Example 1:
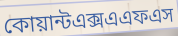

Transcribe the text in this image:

কোয়ান্টএক্সএএফএস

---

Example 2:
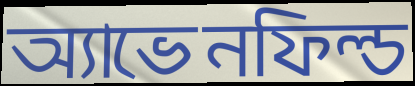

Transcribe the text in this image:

অ্যাভেনফিল্ড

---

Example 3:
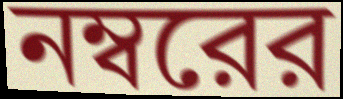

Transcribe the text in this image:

নম্বরের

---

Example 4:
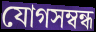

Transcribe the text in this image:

যোগসম্বন্ধ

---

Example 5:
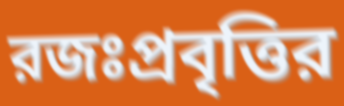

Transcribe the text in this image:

রজঃপ্রবৃত্তির